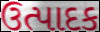
ઉત્પાદક